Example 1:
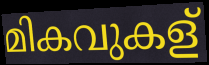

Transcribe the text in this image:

മികവുകള്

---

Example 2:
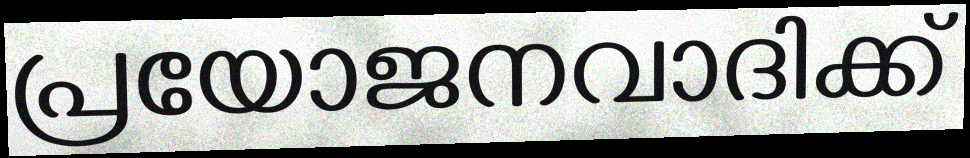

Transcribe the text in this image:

പ്രയോജനവാദിക്ക്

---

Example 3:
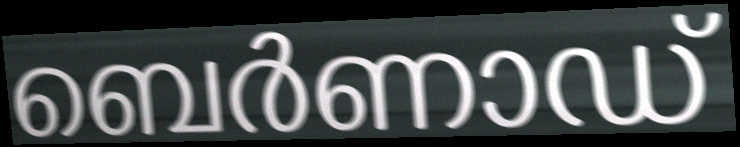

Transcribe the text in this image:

ബെർണാഡ്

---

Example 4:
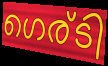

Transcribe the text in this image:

ഗെര്ടി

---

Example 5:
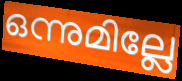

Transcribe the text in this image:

ഒന്നുമില്ലേ